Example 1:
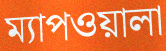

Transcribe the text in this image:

ম্যাপওয়ালা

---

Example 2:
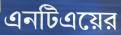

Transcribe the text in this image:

এনটিএয়ের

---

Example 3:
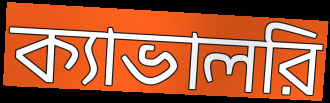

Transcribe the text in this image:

ক্যাভালরি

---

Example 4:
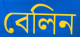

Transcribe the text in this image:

বেলিন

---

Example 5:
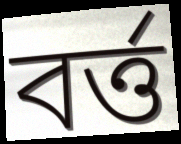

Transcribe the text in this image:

বর্ত্ত